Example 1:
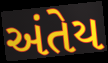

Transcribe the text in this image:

અંતેય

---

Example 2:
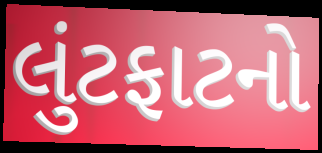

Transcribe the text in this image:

લુંટફાટનો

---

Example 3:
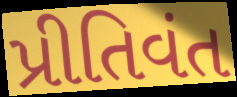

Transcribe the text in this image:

પ્રીતિવંત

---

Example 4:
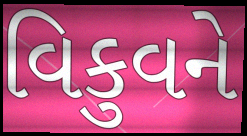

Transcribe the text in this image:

વિકુવને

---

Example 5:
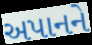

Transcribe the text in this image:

અપાનને